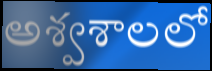
అశ్వశాలలో